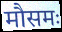
मौसमः